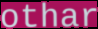
othar